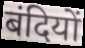
बंदियों